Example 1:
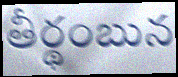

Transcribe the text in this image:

తీర్థంబున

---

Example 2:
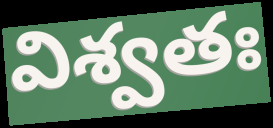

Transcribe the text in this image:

విశ్వతః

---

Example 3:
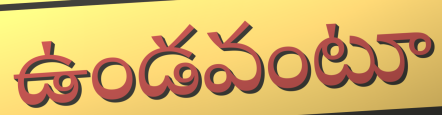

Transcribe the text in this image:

ఉండవంటూ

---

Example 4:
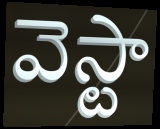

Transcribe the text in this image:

వెస్టా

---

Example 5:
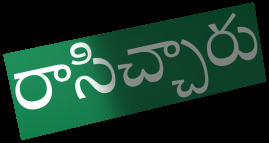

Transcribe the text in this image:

రాసిచ్చారు